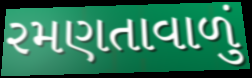
રમણતાવાળું